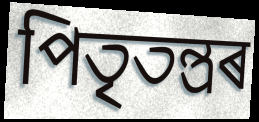
পিতৃতন্ত্ৰৰ